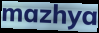
mazhya